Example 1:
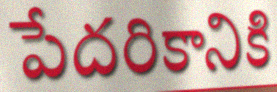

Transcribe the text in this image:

పేదరికానికి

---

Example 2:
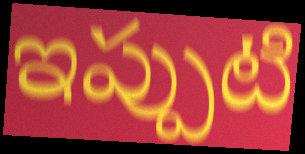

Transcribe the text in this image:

ఇప్పుటి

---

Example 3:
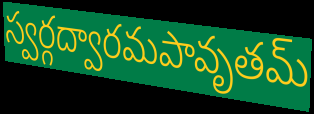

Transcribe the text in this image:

స్వర్గద్వారమపావృతమ్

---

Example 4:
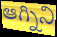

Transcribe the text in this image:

ఆగ్నిని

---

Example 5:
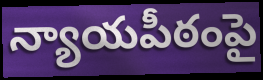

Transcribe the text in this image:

న్యాయపీఠంపై